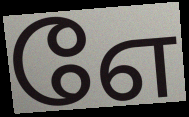
எே